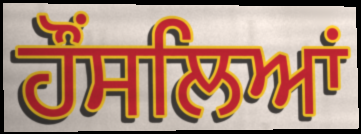
ਹੌਂਸਲਿਆਂ